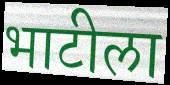
भाटीला